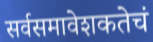
सर्वसमावेशकतेचं